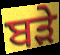
ਬਡ਼ੇ